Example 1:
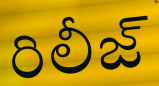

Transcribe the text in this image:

రిలీజ్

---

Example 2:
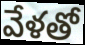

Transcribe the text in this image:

వేళతో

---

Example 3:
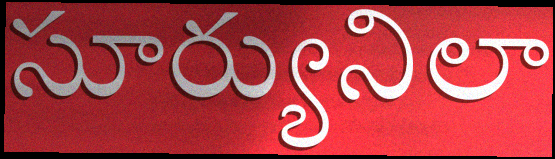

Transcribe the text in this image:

సూర్యునిలా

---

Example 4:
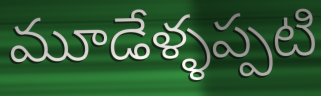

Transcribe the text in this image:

మూడేళ్ళప్పటి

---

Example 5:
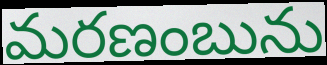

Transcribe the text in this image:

మరణంబును